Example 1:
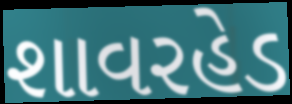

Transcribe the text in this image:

શાવરહેડ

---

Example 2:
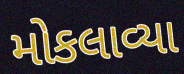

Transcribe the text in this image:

મોકલાવ્યા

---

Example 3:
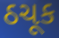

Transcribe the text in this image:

ઠચૂક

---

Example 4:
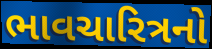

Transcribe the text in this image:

ભાવચારિત્રનો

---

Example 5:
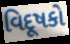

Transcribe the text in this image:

વિદૂષકો